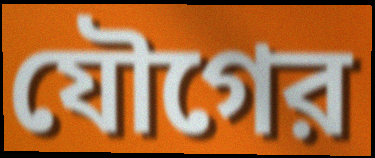
যৌগের